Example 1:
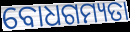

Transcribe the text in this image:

ବୋଧଗମ୍ୟତା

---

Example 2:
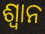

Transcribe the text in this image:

ଶ୍ଵାନ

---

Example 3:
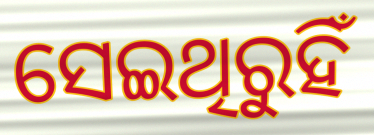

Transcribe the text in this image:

ସେଇଥିରୁହିଁ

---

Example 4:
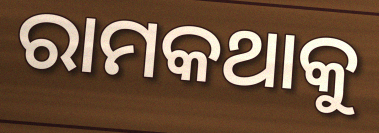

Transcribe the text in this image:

ରାମକଥାକୁ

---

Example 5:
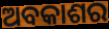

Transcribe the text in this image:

ଅବକାଶର